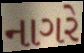
નાગરે